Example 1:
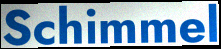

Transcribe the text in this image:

Schimmel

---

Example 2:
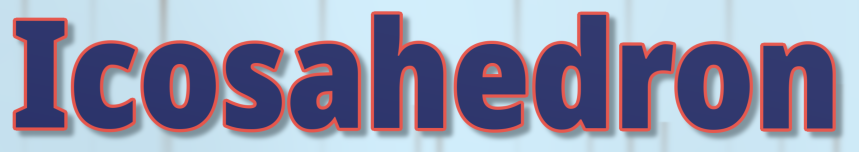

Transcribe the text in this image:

Icosahedron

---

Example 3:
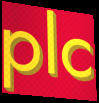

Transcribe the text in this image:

plc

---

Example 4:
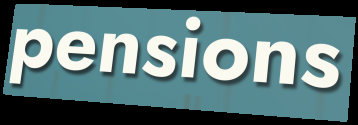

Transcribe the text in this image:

pensions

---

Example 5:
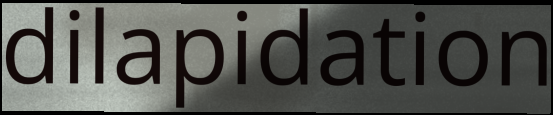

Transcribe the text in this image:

dilapidation